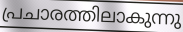
പ്രചാരത്തിലാകുന്നു